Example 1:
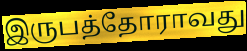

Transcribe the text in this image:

இருபத்தோராவது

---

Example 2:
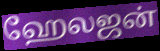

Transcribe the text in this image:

ஹேலஜன்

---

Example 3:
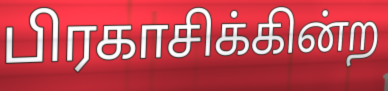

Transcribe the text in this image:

பிரகாசிக்கின்ற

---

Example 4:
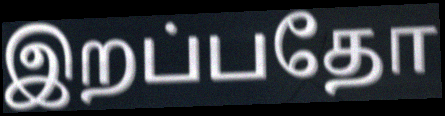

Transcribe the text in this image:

இறப்பதோ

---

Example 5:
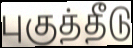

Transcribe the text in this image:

புகுத்தீடு